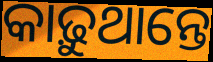
କାଢ଼ୁଥାନ୍ତେ